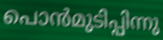
പൊൻമുടിപ്പിന്നു